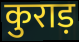
कुराड़